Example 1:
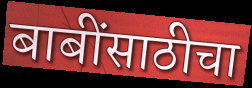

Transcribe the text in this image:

बाबींसाठीचा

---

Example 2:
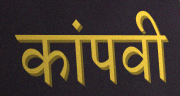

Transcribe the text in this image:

कांपवी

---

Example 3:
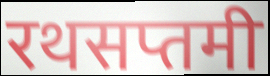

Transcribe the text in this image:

रथसप्तमी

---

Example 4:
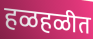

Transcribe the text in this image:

हळहळीत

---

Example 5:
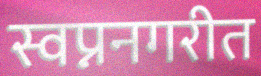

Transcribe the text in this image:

स्वप्ननगरीत